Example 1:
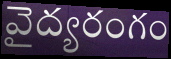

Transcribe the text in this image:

వైద్యరంగం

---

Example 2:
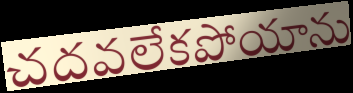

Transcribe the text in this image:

చదవలేకపోయాను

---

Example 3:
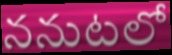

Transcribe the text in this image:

ననుటలో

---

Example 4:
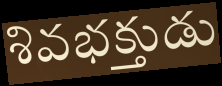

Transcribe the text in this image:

శివభక్తుడు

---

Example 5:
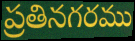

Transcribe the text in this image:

ప్రతినగరము